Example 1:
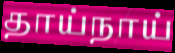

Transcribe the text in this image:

தாய்நாய்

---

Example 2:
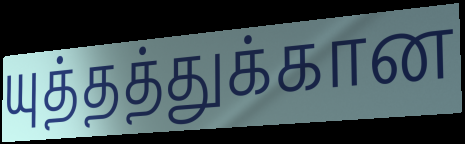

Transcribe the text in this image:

யுத்தத்துக்கான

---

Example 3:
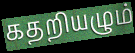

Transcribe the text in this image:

கதறியழும்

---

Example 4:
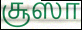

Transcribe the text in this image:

சூஸா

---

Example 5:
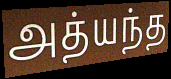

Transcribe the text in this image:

அத்யந்த